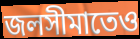
জলসীমাতেও